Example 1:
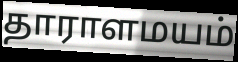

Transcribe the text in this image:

தாராளமயம்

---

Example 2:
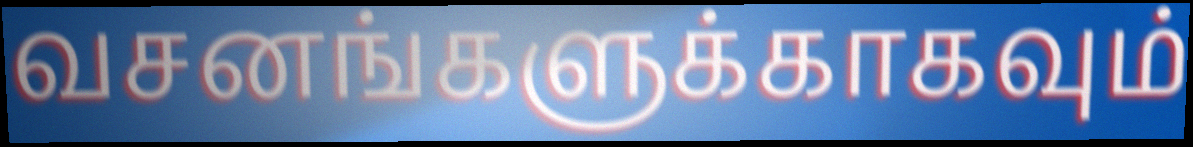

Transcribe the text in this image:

வசனங்களுக்காகவும்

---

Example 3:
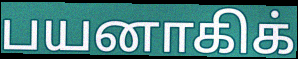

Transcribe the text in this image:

பயனாகிக்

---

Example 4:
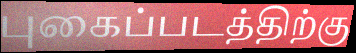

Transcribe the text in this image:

புகைப்படத்திற்கு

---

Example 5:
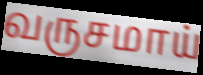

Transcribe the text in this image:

வருசமாய்